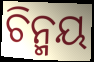
ଚିନ୍ମୟ